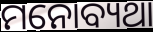
ମନୋବ୍ୟଥା